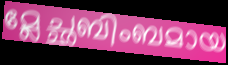
മ്ലേച്ഛബിംബമായ